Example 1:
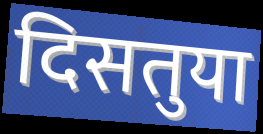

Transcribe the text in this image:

दिसतुया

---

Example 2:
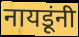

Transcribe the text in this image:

नायडूंनी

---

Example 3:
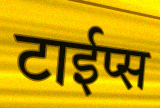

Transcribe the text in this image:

टाईप्स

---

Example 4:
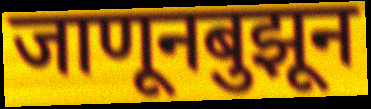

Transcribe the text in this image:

जाणूनबुझून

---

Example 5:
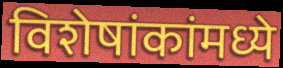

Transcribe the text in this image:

विशेषांकांमध्ये